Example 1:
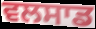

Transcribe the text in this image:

ਵਲਸਾਡ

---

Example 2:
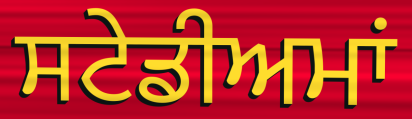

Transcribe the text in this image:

ਸਟੇਡੀਅਮਾਂ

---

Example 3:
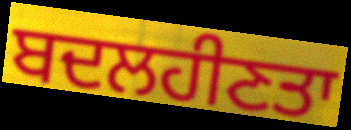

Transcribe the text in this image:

ਬਦਲਹੀਣਤਾ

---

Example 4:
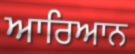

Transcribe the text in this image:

ਆਰਿਆਨ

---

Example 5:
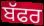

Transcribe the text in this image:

ਬੱਫਰ